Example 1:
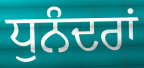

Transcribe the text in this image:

ਧੁਨੰਦਰਾਂ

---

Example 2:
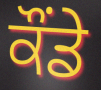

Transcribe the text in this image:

ਕੌਂਡੇ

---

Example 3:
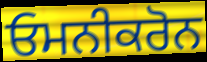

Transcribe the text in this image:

ਓਮਨੀਕਰੋਨ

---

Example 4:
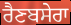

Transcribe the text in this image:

ਰੈਣਬਸੇਰਾ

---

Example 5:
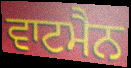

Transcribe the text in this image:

ਵਾਟਮੈਨ